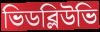
ভিডব্লিউভি